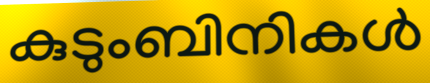
കുടുംബിനികൾ